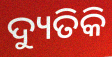
ଦ୍ୟୁତିକି